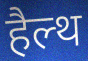
हैल्थ